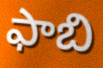
ఫాబి